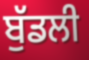
ਬੁੱਡਲੀ